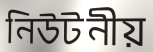
নিউটনীয়